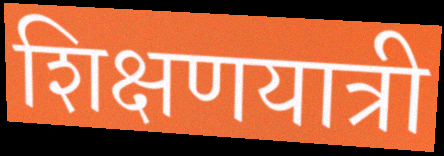
शिक्षणयात्री